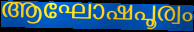
ആഘോഷപൂര്വം